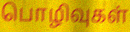
பொழிவுகள்